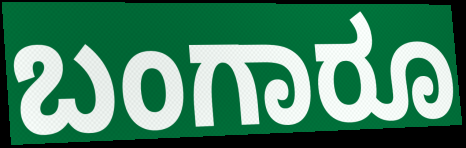
ಬಂಗಾರೂ